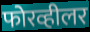
फोरव्हीलर